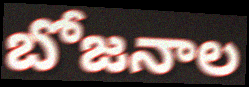
బోజనాల